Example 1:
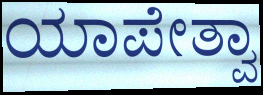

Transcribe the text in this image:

ಯಾಪೇತ್ವಾ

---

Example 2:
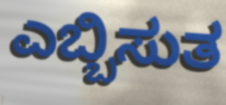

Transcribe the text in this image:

ಎಬ್ಬಿಸುತ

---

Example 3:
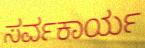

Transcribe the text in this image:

ಸರ್ವಕಾರ್ಯ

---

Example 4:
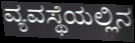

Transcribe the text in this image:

ವ್ಯವಸ್ಥೆಯಲ್ಲಿನ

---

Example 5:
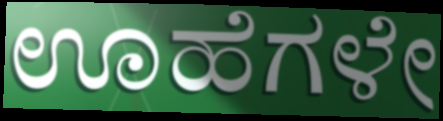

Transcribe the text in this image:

ಊಹೆಗಳೇ